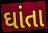
ઘાંતા